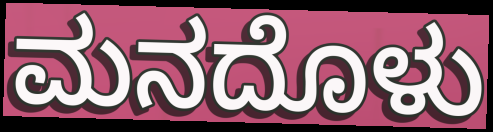
ಮನದೊಳು